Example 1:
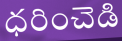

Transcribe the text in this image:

ధరించెడి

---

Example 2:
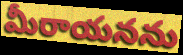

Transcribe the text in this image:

మీరాయనను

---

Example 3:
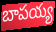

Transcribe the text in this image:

బాపయ్య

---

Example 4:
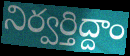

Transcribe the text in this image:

నిర్వర్తిద్దాం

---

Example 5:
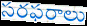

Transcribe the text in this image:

సరఫరాలు